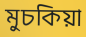
মুচকিয়া